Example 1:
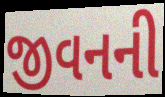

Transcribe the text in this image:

જીવનની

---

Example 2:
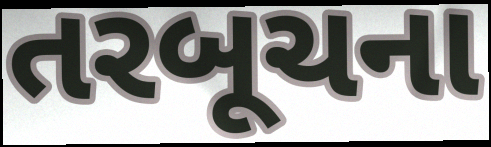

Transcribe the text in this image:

તરબૂચના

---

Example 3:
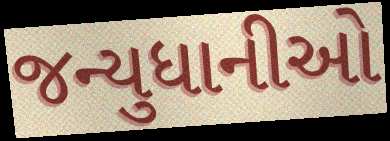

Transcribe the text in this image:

જન્યુધાનીઓ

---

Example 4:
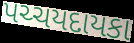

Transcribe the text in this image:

પચ્ચયદાયકા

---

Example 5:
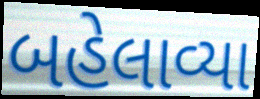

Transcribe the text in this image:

બહેલાવ્યા